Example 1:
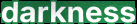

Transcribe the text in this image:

darkness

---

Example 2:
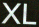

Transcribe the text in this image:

XL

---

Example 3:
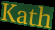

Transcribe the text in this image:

Kath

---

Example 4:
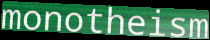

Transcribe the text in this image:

monotheism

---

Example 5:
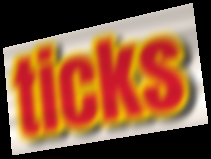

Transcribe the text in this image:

ticks